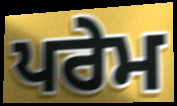
ਪਰੇਮ